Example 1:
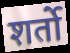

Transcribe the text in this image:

शर्तो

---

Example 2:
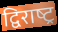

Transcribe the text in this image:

द्विराष्ट्र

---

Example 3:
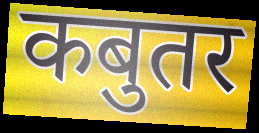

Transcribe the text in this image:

कबुतर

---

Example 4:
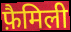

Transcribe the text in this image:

फ़ैमिली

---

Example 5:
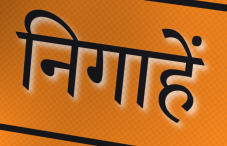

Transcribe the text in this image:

निगाहें